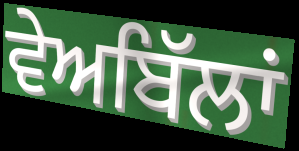
ਵੇਅਬਿੱਲਾਂ